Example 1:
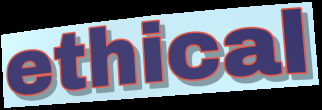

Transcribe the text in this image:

ethical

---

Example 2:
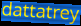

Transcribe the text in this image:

dattatrey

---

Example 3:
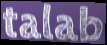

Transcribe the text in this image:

talab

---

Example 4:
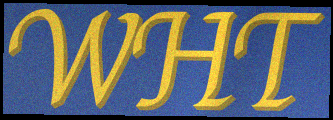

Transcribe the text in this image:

WHT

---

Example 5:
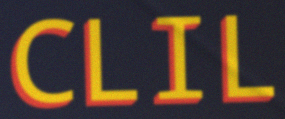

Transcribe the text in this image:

CLIL